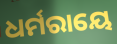
ଧର୍ମରାୟେ